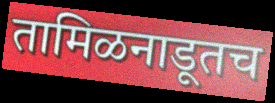
तामिळनाडूतच